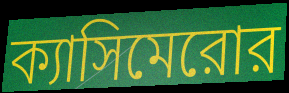
ক্যাসিমেরোর